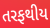
તરફથીય